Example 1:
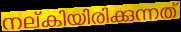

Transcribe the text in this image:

നല്‌കിയിരിക്കുന്നത്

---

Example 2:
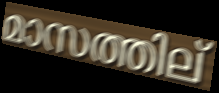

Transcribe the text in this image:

മാസത്തില്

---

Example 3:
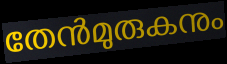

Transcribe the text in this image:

തേൻമുരുകനും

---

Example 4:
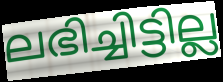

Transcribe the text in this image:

ലഭിച്ചിട്ടില്ല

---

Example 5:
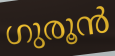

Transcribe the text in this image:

ഗുരൂൻ